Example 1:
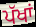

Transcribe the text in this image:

ਪੱਖਾਂ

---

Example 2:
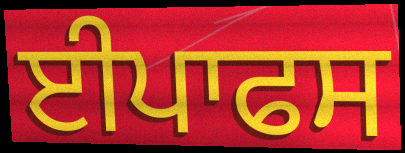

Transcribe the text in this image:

ਈਪਾਫਸ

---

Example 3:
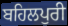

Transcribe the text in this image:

ਬਹਿਲਪੁਰੀ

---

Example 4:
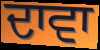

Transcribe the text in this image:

ਦਾਵਾ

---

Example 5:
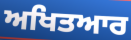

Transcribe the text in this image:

ਅਖਿਤਆਰ